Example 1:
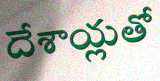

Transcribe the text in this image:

దేశాయ్లతో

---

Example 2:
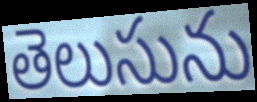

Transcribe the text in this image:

తెలుసును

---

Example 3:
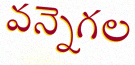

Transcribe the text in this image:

వన్నెగల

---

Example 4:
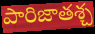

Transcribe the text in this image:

పారిజాతశ్చ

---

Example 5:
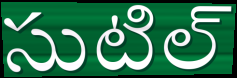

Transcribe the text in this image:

సుటిల్